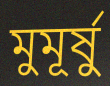
মুমূর্ষু